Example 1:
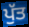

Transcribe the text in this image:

ਪੁੱਤ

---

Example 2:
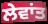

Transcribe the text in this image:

ਲੇਵਾਂਤ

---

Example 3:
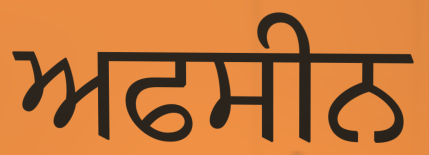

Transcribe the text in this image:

ਅਫਸੀਨ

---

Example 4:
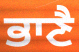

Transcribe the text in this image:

ਭਾਣੈ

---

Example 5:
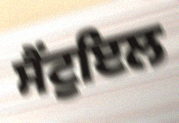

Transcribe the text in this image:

ਸੈਂਟੁਇਲ